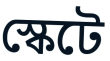
স্কেটে